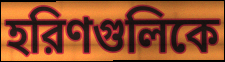
হরিণগুলিকে